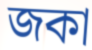
জকা